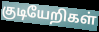
குடியேறிகள்